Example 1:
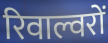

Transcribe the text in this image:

रिवाल्वरों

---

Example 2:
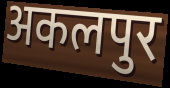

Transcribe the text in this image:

अकलपुर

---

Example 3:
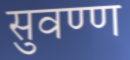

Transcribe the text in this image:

सुवण्ण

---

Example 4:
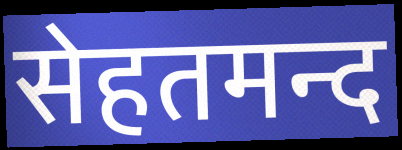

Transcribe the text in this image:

सेहतमन्द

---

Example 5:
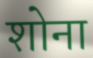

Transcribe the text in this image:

शोना